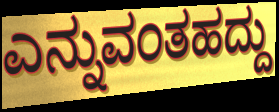
ಎನ್ನುವಂತಹದ್ದು